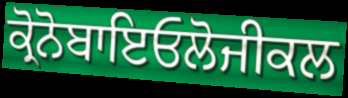
ਕ੍ਰੋਨੋਬਾਇਓਲੋਜੀਕਲ